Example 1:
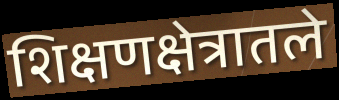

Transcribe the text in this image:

शिक्षणक्षेत्रातले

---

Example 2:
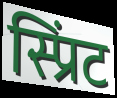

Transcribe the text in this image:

स्प्रिंट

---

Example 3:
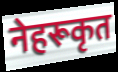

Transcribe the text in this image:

नेहरूकृत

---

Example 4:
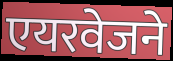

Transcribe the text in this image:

एयरवेजने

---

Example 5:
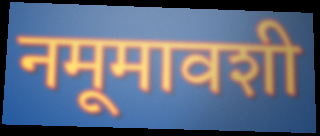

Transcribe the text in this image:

नमूमावशी